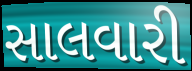
સાલવારી